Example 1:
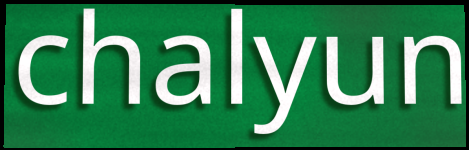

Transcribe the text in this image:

chalyun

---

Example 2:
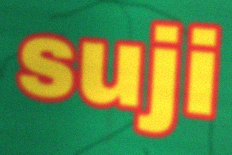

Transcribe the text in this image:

suji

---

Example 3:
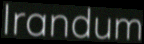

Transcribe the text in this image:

Irandum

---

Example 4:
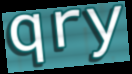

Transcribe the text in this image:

qry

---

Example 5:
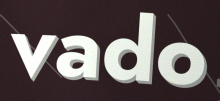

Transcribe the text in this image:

vado